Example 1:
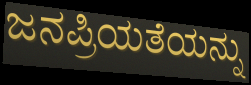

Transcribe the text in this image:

ಜನಪ್ರಿಯತೆಯನ್ನು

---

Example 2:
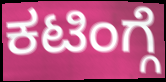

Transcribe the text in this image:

ಕಟಿಂಗ್ಗೆ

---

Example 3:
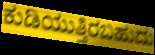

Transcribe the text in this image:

ಕುಡಿಯುತ್ತಿರಬಹುದು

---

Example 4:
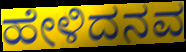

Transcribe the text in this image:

ಹೇಳಿದನವ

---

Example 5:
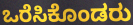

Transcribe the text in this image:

ಒರೆಸಿಕೊಂಡರು